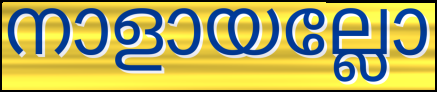
നാളായല്ലോ